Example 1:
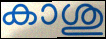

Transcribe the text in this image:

കാശു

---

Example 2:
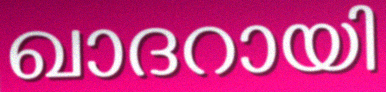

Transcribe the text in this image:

ഖാദറായി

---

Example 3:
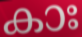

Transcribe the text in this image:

കാഃ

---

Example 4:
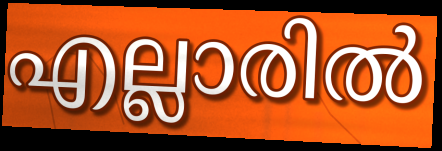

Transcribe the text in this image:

എല്ലാരിൽ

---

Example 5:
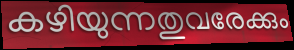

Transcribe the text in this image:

കഴിയുന്നതുവരേക്കും